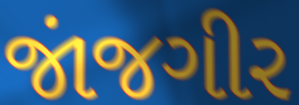
જાંજગીર